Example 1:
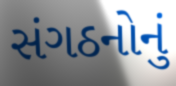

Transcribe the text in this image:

સંગઠનોનું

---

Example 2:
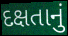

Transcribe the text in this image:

દક્ષતાનું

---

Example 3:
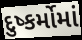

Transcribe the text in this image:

દુષ્કર્મોમાં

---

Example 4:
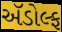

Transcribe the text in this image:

ઍડોલ્ફ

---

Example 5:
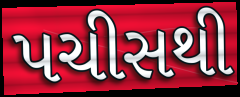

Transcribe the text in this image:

પચીસથી